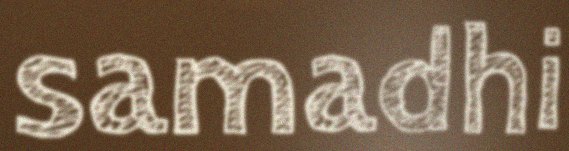
samadhi